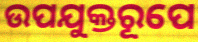
ଉପଯୁକ୍ତରୂପେ